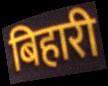
बिहारी